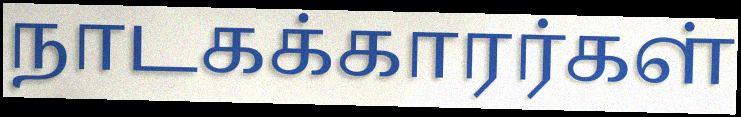
நாடகக்காரர்கள்